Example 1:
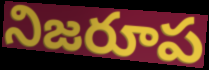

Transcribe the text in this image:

నిజరూప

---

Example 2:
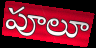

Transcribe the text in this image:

పూలూ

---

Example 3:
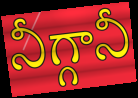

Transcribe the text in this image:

నీగ్గానీ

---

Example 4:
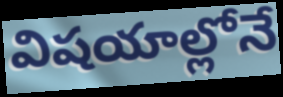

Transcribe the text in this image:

విషయాల్లోనే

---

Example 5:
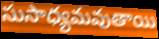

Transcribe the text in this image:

సుసాధ్యమవుతాయి